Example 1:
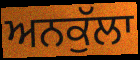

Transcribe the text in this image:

ਅਨਕੁੱਲਾ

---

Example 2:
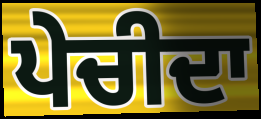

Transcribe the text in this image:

ਪੇਚੀਦਾ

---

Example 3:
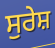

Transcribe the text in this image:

ਸੁਰੇਸ਼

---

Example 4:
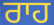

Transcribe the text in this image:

ਰਾਹ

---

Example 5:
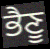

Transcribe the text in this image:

ਭੈਣੂ